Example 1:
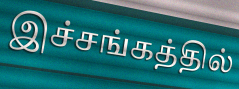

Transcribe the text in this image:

இச்சங்கத்தில்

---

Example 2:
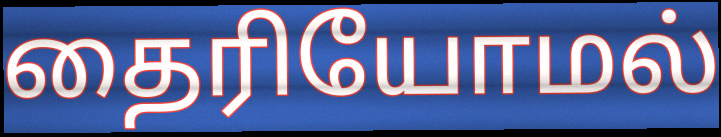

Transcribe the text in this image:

தைரியோமல்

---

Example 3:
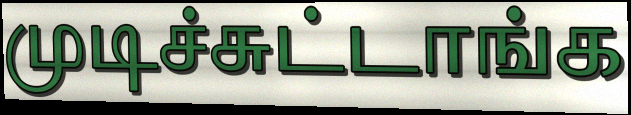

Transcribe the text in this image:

முடிச்சுட்டாங்க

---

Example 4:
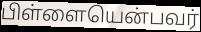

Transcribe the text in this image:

பிள்ளையென்பவர்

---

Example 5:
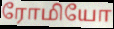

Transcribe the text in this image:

ரோமியோ